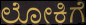
ಲೋಕಿಗೆ